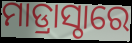
ମାଡ୍ରାସ୍ଠାରେ